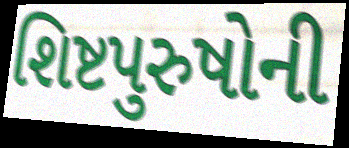
શિષ્ટપુરુષોની